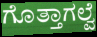
ಗೊತ್ತಾಗಲ್ವೆ